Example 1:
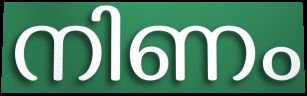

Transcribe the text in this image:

നിണം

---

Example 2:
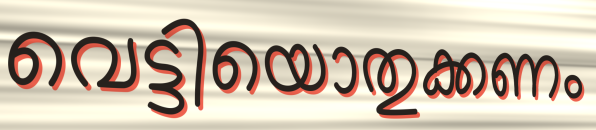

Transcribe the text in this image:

വെട്ടിയൊതുക്കണം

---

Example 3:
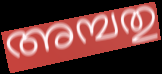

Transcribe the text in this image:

അമ്പതു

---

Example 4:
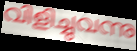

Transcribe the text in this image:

വിളിച്ചുവന്നു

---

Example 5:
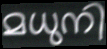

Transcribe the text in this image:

മധുനി